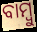
ବାମ୍ବୁ